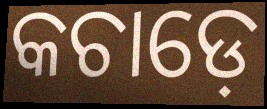
କଚାଡ଼େ